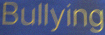
Bullying